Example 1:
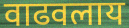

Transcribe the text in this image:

वाढवलाय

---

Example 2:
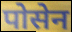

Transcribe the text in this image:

पोसेन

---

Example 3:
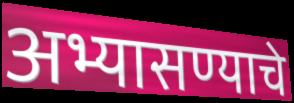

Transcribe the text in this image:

अभ्यासण्याचे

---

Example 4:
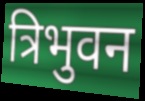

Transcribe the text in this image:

त्रिभुवन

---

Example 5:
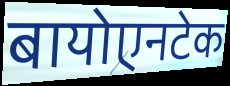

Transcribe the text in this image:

बायोएनटेक